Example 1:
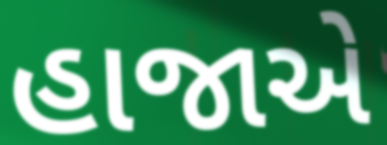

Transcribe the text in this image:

હાજાએ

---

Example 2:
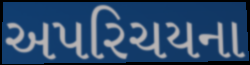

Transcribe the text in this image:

અપરિચયના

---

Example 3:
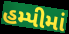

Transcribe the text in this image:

હમ્પીમાં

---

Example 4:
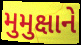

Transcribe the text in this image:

મુમુક્ષાને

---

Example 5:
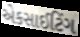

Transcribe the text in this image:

એકસાઈટિંગ